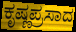
ಕೃಷ್ಣಪ್ರಸಾದ